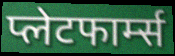
प्लेटफार्म्स